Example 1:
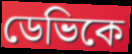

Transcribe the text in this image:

ডেভিকে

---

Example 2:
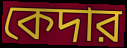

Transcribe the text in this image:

কেদার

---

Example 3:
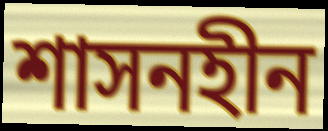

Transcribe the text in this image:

শাসনহীন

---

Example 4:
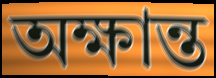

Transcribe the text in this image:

অক্ষান্ত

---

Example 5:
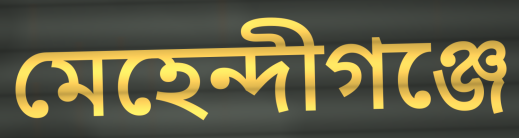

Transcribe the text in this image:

মেহেন্দীগঞ্জে